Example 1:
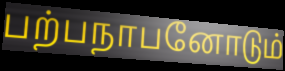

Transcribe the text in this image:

பற்பநாபனோடும்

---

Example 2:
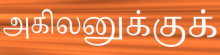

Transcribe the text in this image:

அகிலனுக்குக்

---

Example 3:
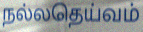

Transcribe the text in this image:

நல்லதெய்வம்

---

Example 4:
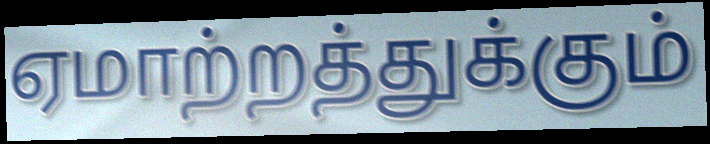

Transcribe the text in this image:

ஏமாற்றத்துக்கும்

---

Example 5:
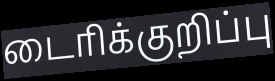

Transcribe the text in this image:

டைரிக்குறிப்பு